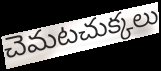
చెమటచుక్కలు